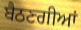
ਬੈਠਣਗੀਆਂ